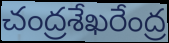
చంద్రశేఖరేంద్ర